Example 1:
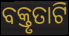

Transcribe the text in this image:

ବକ୍ତୃତାଟି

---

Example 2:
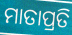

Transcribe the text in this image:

ମାତାପ୍ରତି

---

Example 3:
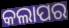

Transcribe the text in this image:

କଲାପର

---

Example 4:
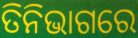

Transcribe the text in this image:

ତିନିଭାଗରେ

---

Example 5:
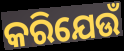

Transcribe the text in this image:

କରିଯେଉଁ